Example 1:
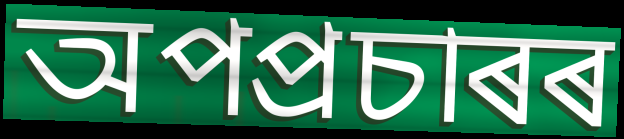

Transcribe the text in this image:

অপপ্ৰচাৰৰ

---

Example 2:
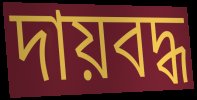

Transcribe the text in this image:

দায়বদ্ধ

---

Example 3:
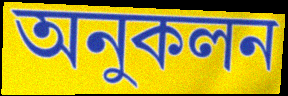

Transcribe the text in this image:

অনুকলন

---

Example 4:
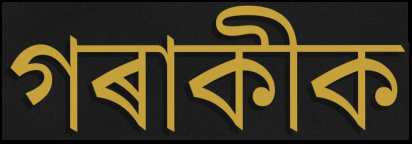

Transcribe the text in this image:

গৰাকীক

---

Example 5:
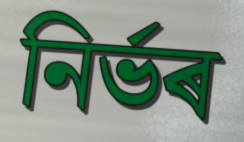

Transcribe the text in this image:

নিৰ্ভৰ